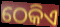
ଠେକିଏ